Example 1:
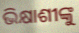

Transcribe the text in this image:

ଭିକ୍ଷାଶୀଙ୍କୁ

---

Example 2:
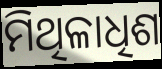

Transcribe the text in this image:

ମିଥିଳାଧିଶ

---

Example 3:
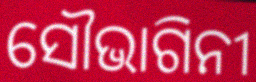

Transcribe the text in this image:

ସୌଭାଗିନୀ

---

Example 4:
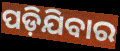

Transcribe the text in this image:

ପଡ଼ିଯିବାର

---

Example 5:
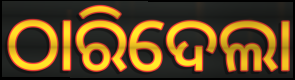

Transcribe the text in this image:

ଠାରିଦେଲା